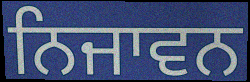
ਨਿਜਾਵਨ